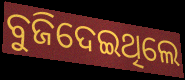
ବୁଜିଦେଇଥିଲେ